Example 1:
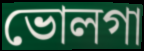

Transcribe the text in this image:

ভোলগা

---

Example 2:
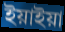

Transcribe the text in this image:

ইয়াইয়া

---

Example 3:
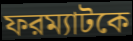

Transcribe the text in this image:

ফরম্যাটকে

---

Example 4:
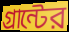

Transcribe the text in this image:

গ্রান্টের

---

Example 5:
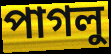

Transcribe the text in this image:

পাগলু